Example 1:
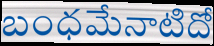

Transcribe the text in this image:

బంధమేనాటిదో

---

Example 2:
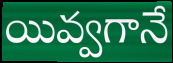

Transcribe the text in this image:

యివ్వగానే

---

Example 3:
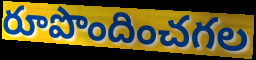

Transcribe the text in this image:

రూపొందించగల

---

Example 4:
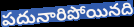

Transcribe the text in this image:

పదునారిపోయినది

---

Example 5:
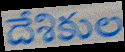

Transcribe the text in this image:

దేశికుల